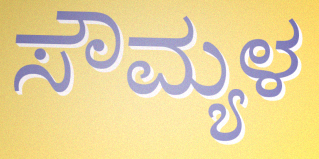
ಸೌಮ್ಯಳ